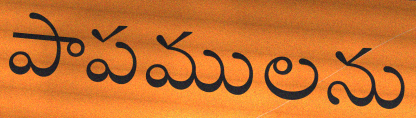
పాపములను